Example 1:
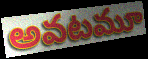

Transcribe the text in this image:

అవటమూ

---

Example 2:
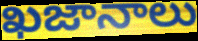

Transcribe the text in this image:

ఖజానాలు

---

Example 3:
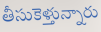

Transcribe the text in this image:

తీసుకెళ్తున్నారు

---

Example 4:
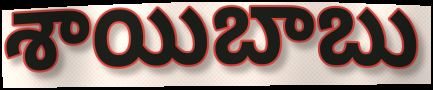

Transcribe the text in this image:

శాయిబాబు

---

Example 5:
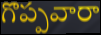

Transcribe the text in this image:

గొప్పవారా